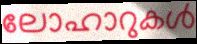
ലോഹാറുകൾ